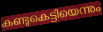
കണ്ടുകെട്ടിയെന്നും